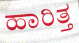
ಹಾರಿತ್ತ